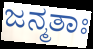
ಜನ್ಮತಾಃ